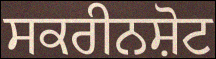
ਸਕਰੀਨਸ਼ੋਟ